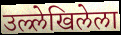
उल्लेखिलेला